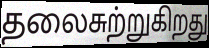
தலைசுற்றுகிறது